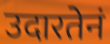
उदारतेनं